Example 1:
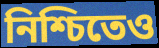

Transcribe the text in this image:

নিশ্চিতেও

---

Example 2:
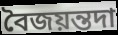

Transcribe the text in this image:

বৈজয়ন্তদা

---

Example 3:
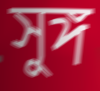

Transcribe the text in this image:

সুঙ্গ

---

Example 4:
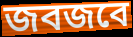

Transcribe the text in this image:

জবজবে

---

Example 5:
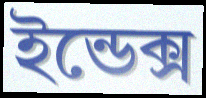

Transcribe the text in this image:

ইন্ডেক্স